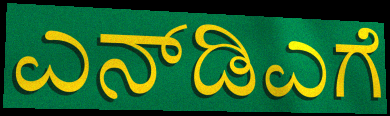
ಎನ್‌ಡಿಎಗೆ